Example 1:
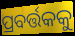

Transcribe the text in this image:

ପ୍ରବର୍ତ୍ତକକୁ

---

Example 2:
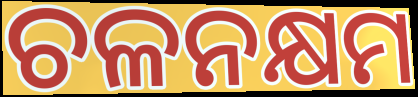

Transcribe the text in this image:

ଚଳନକ୍ଷମ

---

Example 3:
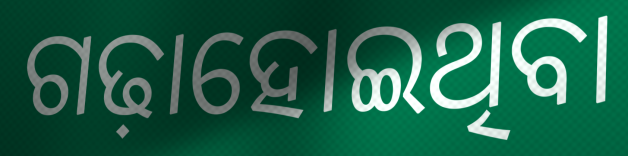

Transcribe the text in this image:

ଗଢ଼ାହୋଇଥିବା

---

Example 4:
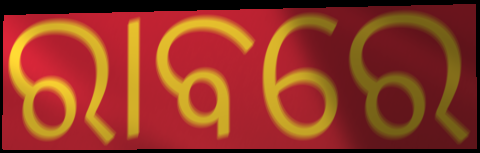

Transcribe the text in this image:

ରାବରେ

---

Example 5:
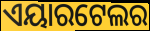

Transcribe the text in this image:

ଏୟାରଟେଲର